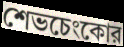
শেভচেংকোর